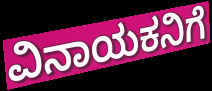
ವಿನಾಯಕನಿಗೆ